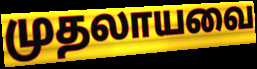
முதலாயவை